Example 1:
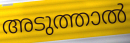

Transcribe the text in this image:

അടുത്താൽ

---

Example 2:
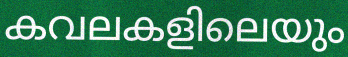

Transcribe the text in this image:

കവലകളിലെയും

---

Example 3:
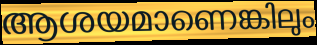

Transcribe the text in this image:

ആശയമാണെങ്കിലും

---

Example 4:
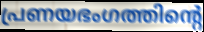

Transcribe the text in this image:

പ്രണയഭംഗത്തിന്റെ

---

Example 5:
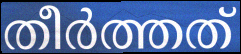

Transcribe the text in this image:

തീർത്തത്